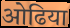
ओढिया